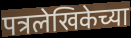
पत्रलेखिकेच्या